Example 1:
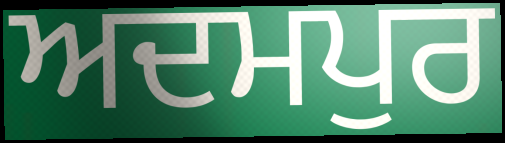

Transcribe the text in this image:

ਅਦਮਪੁਰ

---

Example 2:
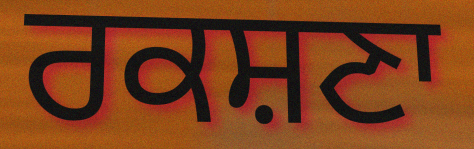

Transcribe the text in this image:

ਰਕਸ਼ਣਾ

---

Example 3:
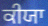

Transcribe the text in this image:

ਕੀਯਾ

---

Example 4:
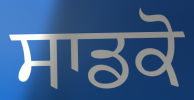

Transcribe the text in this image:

ਸਾਡਕੋ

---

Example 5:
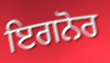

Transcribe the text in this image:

ਇਗਨੋਰ